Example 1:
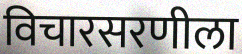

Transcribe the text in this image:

विचारसरणीला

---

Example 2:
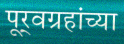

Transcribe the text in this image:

पूर्वग्रहांच्या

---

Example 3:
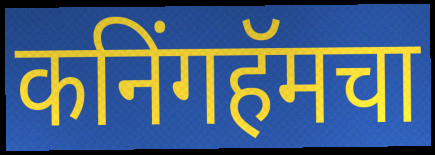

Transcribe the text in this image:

कनिंगहॅमचा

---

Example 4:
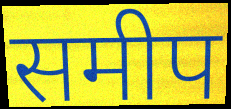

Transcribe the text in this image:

समीप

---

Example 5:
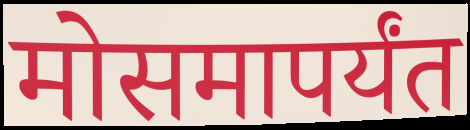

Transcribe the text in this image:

मोसमापर्यंत